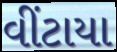
વીંટાયા